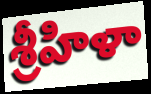
శ్రీహిళా